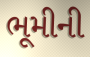
ભૂમીની